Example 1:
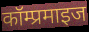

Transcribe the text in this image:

कॉम्प्रमाइज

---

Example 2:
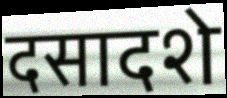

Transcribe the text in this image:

दसादशे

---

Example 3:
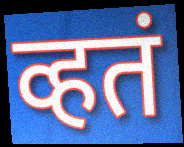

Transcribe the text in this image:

व्हतं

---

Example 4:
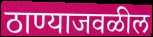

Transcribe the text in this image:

ठाण्याजवळील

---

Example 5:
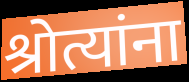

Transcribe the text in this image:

श्रोत्यांना